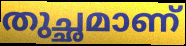
തുച്ഛമാണ്